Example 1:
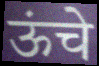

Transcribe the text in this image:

ऊंचे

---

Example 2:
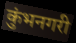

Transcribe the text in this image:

कुंभनगरी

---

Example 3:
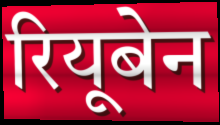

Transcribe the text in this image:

रियूबेन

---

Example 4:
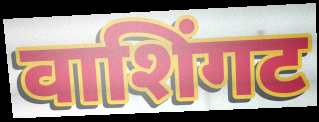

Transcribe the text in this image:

वाशिंगट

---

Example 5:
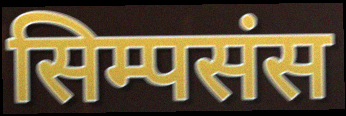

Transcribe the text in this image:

सिम्पसंस